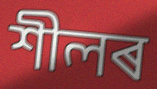
শীলৰ